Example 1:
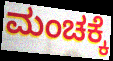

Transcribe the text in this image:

ಮಂಚಕ್ಕೆ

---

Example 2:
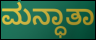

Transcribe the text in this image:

ಮನ್ಧಾತಾ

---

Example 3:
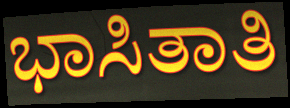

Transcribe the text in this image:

ಭಾಸಿತಾತಿ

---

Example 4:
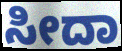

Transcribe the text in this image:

ಸೀದಾ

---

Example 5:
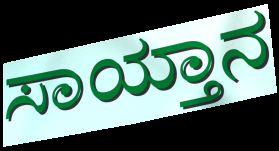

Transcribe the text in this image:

ಸಾಯ್ತಾನ